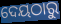
ଦେୟଠାରୁ